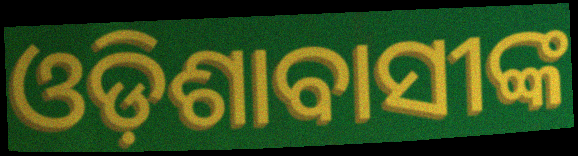
ଓଡ଼ିଶାବାସୀଙ୍କ